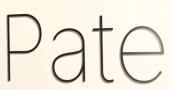
Pate